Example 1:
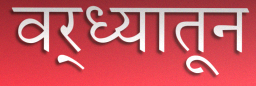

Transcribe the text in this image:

वर्ध्यातून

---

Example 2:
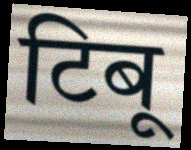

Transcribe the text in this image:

टिबू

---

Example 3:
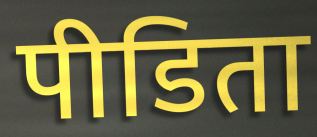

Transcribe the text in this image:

पीडिता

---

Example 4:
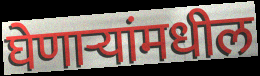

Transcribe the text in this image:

घेणाऱ्यांमधील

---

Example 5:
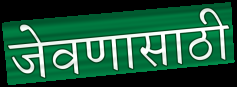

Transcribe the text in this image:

जेवणासाठी